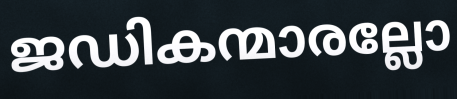
ജഡികന്മാരല്ലോ